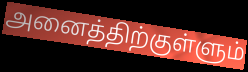
அனைத்திற்குள்ளும்